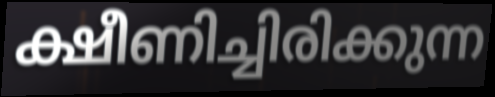
ക്ഷീണിച്ചിരിക്കുന്ന